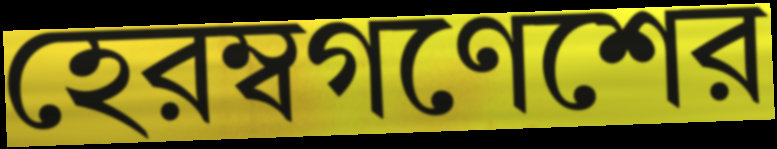
হেরম্বগণেশের